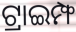
ଟ୍ରାଇମ୍ଫ